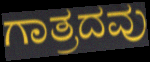
ಗಾತ್ರದವು